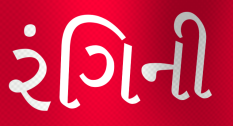
રંગિની